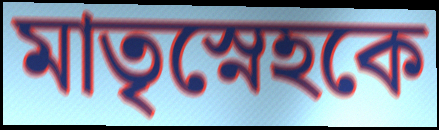
মাতৃস্নেহকে